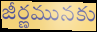
జీర్ణమునకు